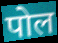
पोल